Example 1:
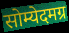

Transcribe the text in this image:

सोम्येदमग्र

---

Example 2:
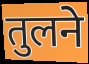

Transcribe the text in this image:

तुलने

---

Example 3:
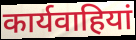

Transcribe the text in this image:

कार्यवाहियां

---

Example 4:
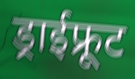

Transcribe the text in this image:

ड्राईफ्रूट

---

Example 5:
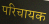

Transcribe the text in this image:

परिचायक